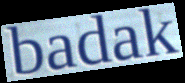
badak